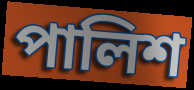
পালিশ